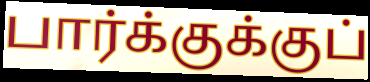
பார்க்குக்குப்